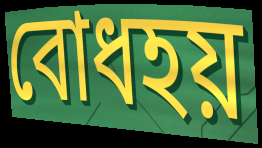
বোধহয়